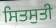
ਸਿਤਸੁਤੀ